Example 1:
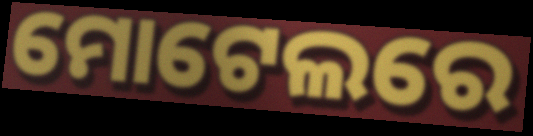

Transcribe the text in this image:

ମୋଟେଲରେ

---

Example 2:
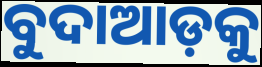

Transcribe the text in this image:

ବୁଦାଆଡ଼କୁ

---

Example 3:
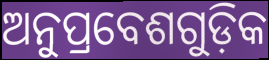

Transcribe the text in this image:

ଅନୁପ୍ରବେଶଗୁଡ଼ିକ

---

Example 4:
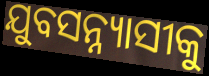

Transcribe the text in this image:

ଯୁବସନ୍ନ୍ୟାସୀକୁ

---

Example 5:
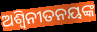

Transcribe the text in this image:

ଅଶ୍ୱିନୀତନୟଙ୍କ